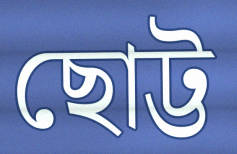
ছোট্ট